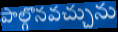
పాల్గొనవచ్చును